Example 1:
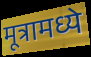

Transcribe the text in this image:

मूत्रामध्ये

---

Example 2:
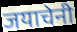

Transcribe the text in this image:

जयाचेनी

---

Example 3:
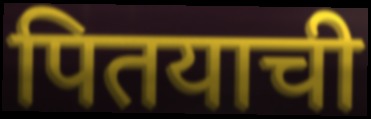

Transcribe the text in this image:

पितयाची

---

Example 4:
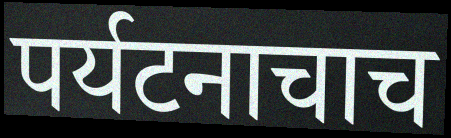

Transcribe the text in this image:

पर्यटनाचाच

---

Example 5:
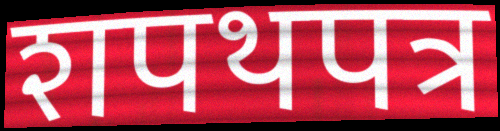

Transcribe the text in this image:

शपथपत्र